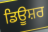
ਡਿਊਸ਼ਰ